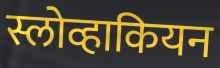
स्लोव्हाकियन